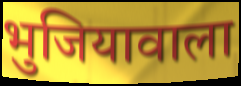
भुजियावाला